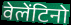
वेलेंटिनो